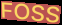
FOSS